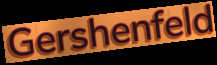
Gershenfeld